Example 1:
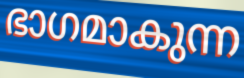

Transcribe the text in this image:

ഭാഗമാകുന്ന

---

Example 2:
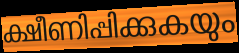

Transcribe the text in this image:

ക്ഷീണിപ്പിക്കുകയും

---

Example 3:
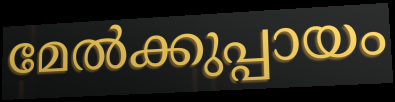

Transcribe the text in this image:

മേൽക്കുപ്പായം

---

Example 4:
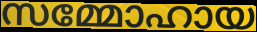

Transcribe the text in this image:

സമ്മോഹായ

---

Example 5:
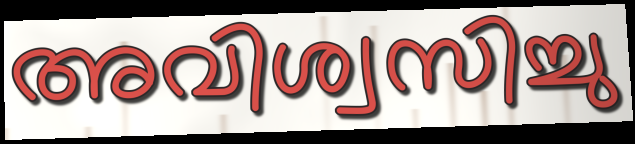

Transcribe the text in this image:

അവിശ്വസിച്ചു